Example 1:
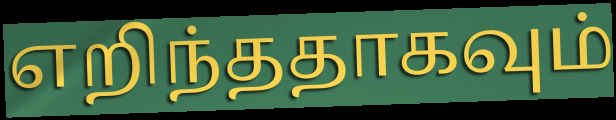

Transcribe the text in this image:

எறிந்ததாகவும்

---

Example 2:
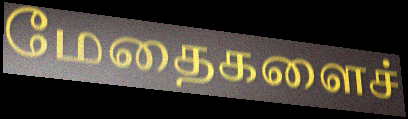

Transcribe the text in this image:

மேதைகளைச்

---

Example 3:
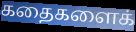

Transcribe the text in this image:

கதைகளைக்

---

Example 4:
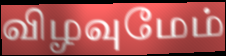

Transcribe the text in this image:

விழவுமேம்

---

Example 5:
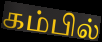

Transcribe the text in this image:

கம்பில்